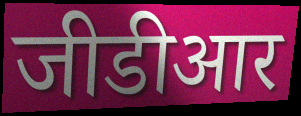
जीडीआर